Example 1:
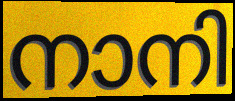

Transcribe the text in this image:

നാനി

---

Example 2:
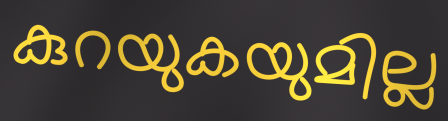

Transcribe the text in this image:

കുറയുകയുമില്ല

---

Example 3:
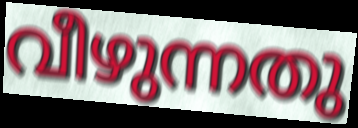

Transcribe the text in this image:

വീഴുന്നതു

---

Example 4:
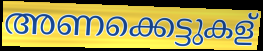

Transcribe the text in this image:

അണക്കെട്ടുകള്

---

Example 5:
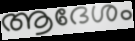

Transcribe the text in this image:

ആദേശം